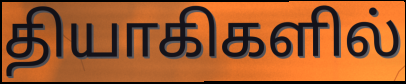
தியாகிகளில்